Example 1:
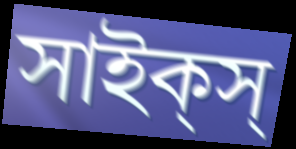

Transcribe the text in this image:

সাইক্‌স্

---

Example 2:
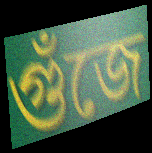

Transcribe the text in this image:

গুঁজে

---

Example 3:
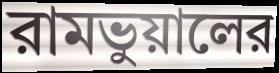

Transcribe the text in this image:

রামভুয়ালের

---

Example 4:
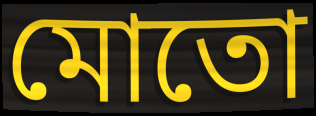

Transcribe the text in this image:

মোতো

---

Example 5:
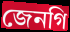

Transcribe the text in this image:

জেনগি